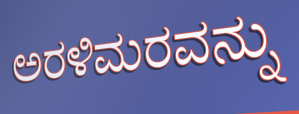
ಅರಳಿಮರವನ್ನು